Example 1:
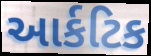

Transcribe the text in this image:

આર્કટિક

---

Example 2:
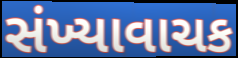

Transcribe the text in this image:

સંખ્યાવાચક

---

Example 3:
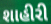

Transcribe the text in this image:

શાહીરી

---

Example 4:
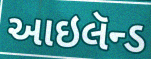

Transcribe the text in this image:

આઇલૅન્ડ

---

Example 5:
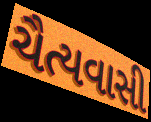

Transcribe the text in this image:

ચૈત્યવાસી